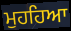
ਮੁਹਹਿਆ